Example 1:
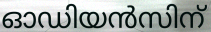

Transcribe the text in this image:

ഓഡിയൻസിന്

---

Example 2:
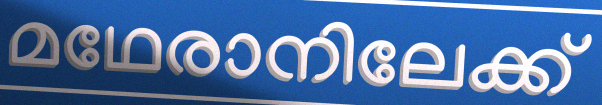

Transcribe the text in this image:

മഥേരാനിലേക്ക്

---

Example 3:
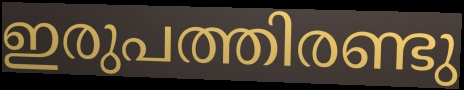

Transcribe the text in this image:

ഇരുപത്തിരണ്ടു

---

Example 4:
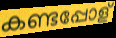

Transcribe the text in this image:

കണ്ടപ്പോള്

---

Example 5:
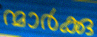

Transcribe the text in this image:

ന്മാർക്കു